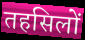
तहसिलों